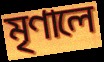
মৃণালে